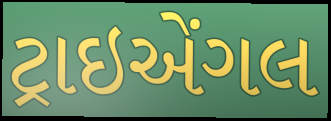
ટ્રાઇએંગલ